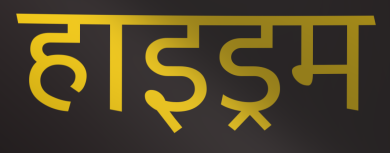
हाइड्रम